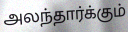
அலந்தார்க்கும்